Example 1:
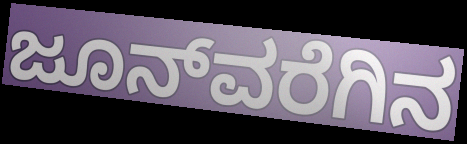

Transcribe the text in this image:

ಜೂನ್‌ವರೆಗಿನ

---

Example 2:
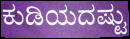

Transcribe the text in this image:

ಕುಡಿಯದಷ್ಟು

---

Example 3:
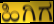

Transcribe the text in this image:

ಹಿಗಿಗ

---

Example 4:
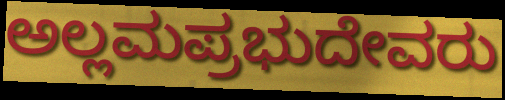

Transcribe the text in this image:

ಅಲ್ಲಮಪ್ರಭುದೇವರು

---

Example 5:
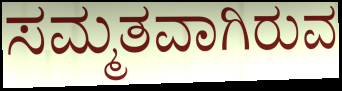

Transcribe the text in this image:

ಸಮ್ಮತವಾಗಿರುವ